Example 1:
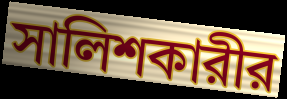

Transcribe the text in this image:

সালিশকারীর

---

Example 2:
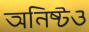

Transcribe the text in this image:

অনিষ্টও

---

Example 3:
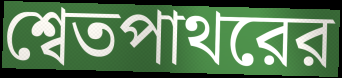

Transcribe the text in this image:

শ্বেতপাথরের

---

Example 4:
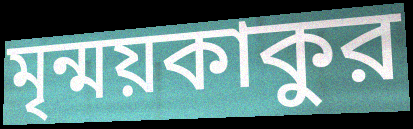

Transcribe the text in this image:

মৃন্ময়কাকুর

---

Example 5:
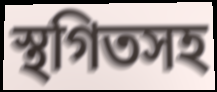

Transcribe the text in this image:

স্থগিতসহ